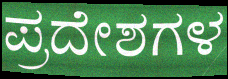
ಪ್ರದೇಶಗಳ